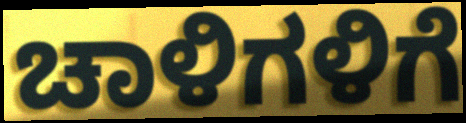
ಚಾಳಿಗಳಿಗೆ